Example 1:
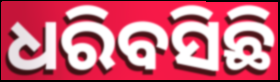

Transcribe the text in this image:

ଧରିବସିଛି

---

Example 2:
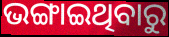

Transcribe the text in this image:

ଭଙ୍ଗାଇଥିବାରୁ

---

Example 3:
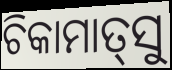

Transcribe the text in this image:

ଚିକାମାତ୍‌ସୁ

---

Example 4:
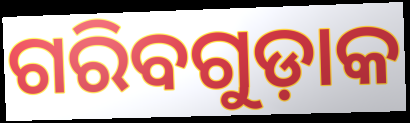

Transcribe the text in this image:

ଗରିବଗୁଡ଼ାକ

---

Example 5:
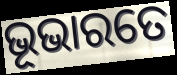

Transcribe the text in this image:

ଭୂଭାରତେ